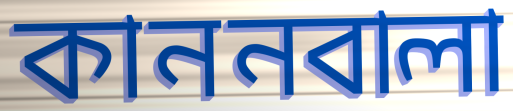
কাননবালা